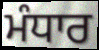
ਮੰਧਾਰ